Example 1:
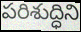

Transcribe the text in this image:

పరిశుద్ధిని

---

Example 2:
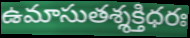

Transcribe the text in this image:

ఉమాసుతశ్శక్తిధరః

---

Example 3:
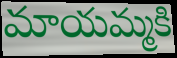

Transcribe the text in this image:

మాయమ్మకి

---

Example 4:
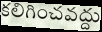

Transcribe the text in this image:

కలిగించవద్దు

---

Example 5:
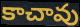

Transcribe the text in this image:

కాచావు